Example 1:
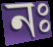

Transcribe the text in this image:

নঃ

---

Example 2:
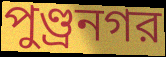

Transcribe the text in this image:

পুণ্ড্রনগর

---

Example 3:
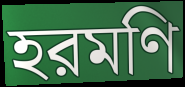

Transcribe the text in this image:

হরমণি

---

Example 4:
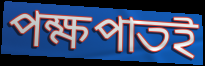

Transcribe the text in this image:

পক্ষপাতই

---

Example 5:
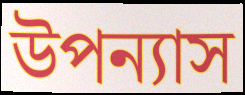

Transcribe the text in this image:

উপন্যাস